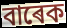
বাৰেক